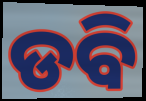
ଡବି